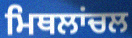
ਮਿਥਲਾਂਚਲ